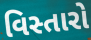
વિસ્તારો